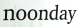
noonday